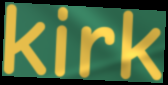
kirk